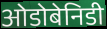
ओडोबेनिडी